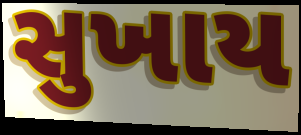
સુખાય